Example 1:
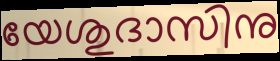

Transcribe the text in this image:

യേശുദാസിനു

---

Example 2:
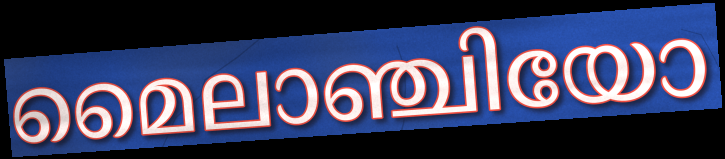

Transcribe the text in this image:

മൈലാഞ്ചിയോ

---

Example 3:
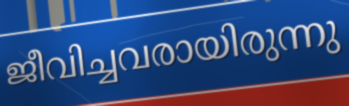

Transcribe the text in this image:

ജീവിച്ചവരായിരുന്നു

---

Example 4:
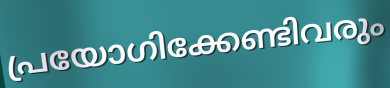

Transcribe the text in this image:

പ്രയോഗിക്കേണ്ടിവരും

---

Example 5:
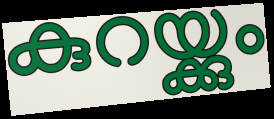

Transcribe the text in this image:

കുറയ്ക്കും